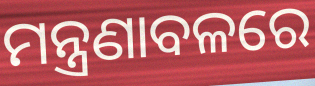
ମନ୍ତ୍ରଣାବଳରେ